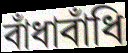
বাঁধাবাঁধি